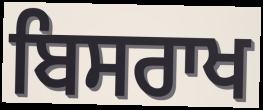
ਬਿਸਰਾਖ